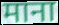
माना